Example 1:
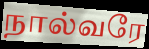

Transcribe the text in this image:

நால்வரே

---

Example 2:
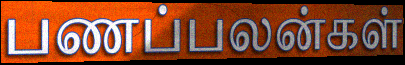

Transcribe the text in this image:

பணப்பலன்கள்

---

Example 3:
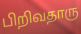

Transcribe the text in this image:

பிறிவதாரு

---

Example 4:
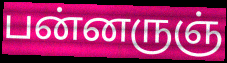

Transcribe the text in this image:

பன்னருஞ்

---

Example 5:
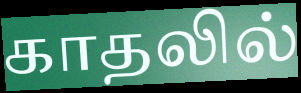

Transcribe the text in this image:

காதலில்